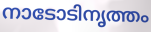
നാടോടിനൃത്തം